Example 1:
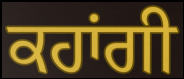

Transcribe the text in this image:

ਕਹਾਂਗੀ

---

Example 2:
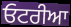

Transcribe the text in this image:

ਓਟਰੀਆ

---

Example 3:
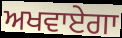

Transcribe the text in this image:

ਅਖਵਾਏਗਾ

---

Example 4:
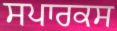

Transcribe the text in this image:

ਸਪਾਰਕਸ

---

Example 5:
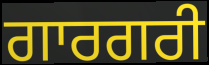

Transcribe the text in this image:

ਗਾਰਗਰੀ